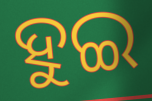
ହୁଇ